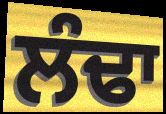
ਲੰਢਾ